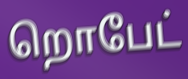
றொபேட்